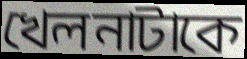
খেলনাটাকে